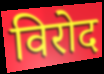
विरोद